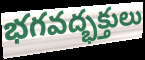
భగవద్భక్తులు